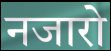
नजारो